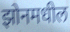
झोनमधील